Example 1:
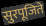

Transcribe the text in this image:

सुरपूजिते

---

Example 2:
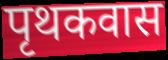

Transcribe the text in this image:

पृथकवास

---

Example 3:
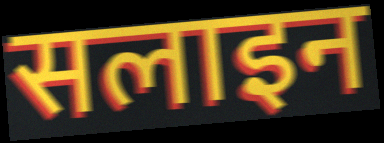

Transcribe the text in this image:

सलाइन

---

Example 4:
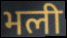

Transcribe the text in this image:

भली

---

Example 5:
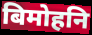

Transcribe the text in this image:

बिमोहनि